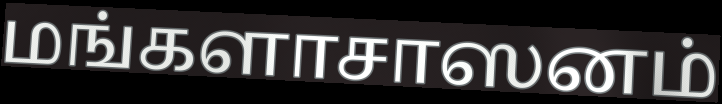
மங்களாசாஸனம்